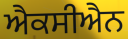
ਐਕਸੀਐਨ